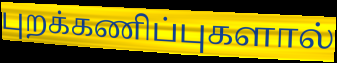
புறக்கணிப்புகளால்